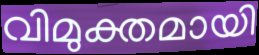
വിമുക്തമായി